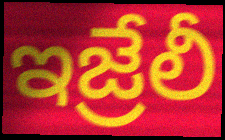
ఇజ్రేలీ